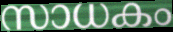
സാധകം